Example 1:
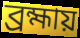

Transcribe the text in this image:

ব্রহ্মায়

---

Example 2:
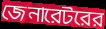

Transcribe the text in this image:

জেনারেটরের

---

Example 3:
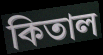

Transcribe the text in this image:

কিতাল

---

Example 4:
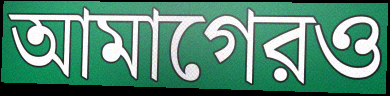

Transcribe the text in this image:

আমাগেরও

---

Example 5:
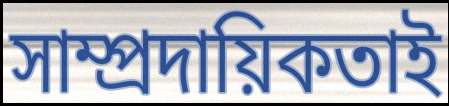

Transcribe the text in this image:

সাম্প্রদায়িকতাই